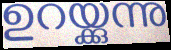
ഉറയ്ക്കുന്നു